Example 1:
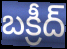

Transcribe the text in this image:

బక్రీద్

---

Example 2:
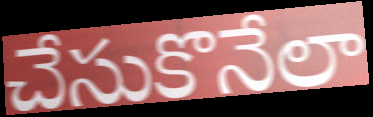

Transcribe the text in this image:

చేసుకొనేలా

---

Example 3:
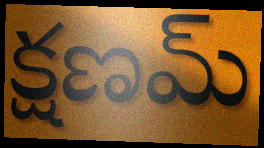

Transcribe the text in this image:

క్షణమ్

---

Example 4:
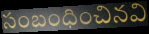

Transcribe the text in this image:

సంబంధించినవి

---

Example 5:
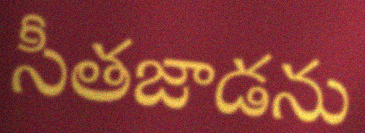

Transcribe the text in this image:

సీతజాడను